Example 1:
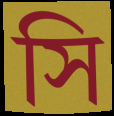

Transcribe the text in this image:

সি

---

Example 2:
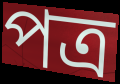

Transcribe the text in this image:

পত্ৰ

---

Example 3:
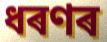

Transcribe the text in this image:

ধৰণৰ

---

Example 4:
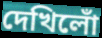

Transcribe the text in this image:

দেখিলোঁ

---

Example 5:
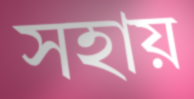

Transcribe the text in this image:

সহায়